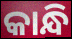
କାନ୍ଧି